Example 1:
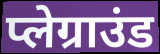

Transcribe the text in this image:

प्लेग्राउंड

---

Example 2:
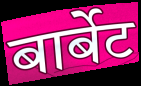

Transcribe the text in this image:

बार्बेट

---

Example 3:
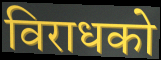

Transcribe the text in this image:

विराधको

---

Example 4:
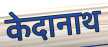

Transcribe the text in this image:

केदानाथ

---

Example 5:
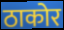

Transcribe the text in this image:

ठाकोर